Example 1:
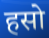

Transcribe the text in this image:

हसो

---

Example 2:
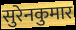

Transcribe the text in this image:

सुरेनकुमार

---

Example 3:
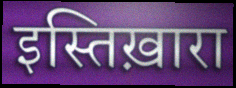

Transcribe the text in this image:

इस्तिख़ारा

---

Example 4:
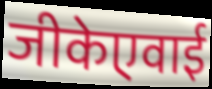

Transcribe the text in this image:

जीकेएवाई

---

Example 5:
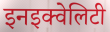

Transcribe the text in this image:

इनइक्वेलिटी